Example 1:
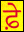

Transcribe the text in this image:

ਫ਼ੇ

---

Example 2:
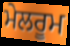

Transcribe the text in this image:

ਮੇਲਰੂਮ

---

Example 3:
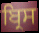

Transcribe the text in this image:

ਬ੍ਰਿਸ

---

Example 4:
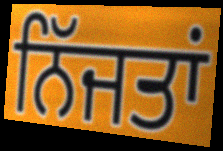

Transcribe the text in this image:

ਨਿੱਜਤਾਂ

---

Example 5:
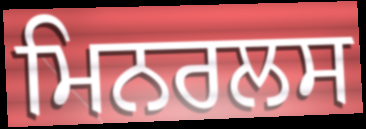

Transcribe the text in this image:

ਮਿਨਰਲਸ